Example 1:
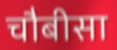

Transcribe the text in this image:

चौबीसा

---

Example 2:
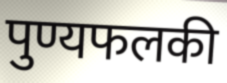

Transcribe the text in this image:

पुण्यफलकी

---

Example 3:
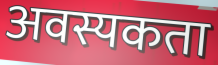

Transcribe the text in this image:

अवस्यकता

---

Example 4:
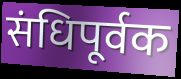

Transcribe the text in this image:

संधिपूर्वक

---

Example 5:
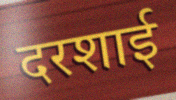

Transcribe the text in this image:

दरशाई